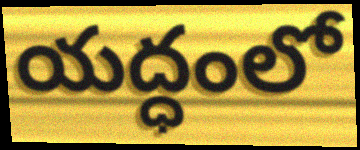
యద్ధంలో